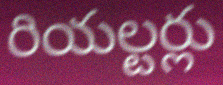
రియల్టర్లు